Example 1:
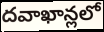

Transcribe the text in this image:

దవాఖాన్లలో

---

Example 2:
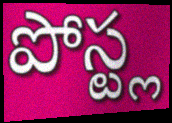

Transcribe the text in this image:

పోస్ట్ల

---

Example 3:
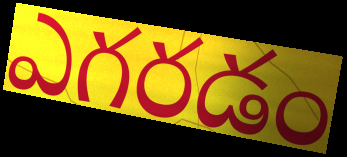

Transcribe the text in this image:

ఎగరడం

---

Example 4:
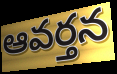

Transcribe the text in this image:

ఆవర్తన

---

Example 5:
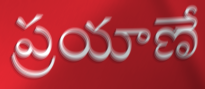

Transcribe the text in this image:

ప్రయాణే